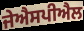
ਜੇਐਸਪੀਐਲ